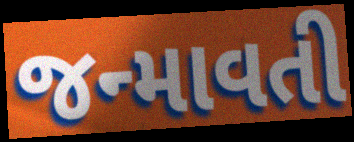
જન્માવતી